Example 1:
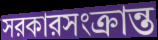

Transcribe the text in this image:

সরকারসংক্রান্ত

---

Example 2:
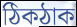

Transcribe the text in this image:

ঠিকঠাক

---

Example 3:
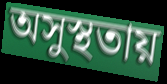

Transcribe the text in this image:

অসুস্থতায়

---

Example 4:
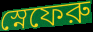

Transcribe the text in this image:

স্নেফেরু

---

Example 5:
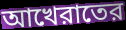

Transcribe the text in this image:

আখেরাতের